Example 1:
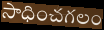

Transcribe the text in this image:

సాధించగలం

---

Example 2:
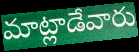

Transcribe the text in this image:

మాట్లాడేవారు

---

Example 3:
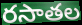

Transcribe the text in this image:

రసాతల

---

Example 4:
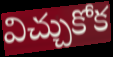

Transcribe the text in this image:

విచ్చుకోక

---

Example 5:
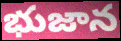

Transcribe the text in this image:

భుజాన